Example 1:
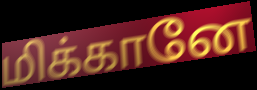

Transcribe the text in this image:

மிக்கானே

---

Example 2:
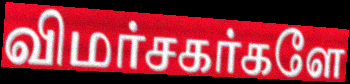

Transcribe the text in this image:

விமர்சகர்களே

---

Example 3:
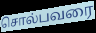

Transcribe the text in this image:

சொல்பவரை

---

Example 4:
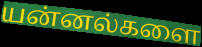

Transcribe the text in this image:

யன்னல்களை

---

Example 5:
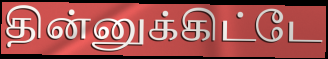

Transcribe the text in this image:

தின்னுக்கிட்டே